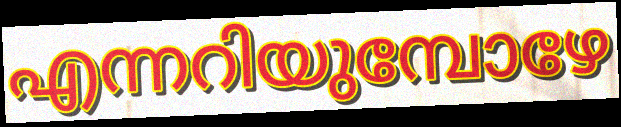
എന്നറിയുമ്പോഴേ